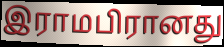
இராமபிரானது